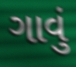
ગાવું